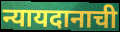
न्यायदानाची